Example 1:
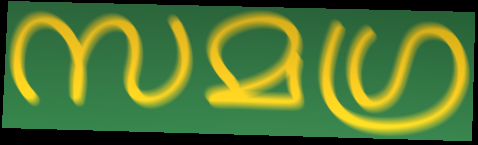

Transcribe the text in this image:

സമഗ്ര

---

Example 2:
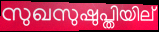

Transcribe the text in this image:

സുഖസുഷുപ്തിയില്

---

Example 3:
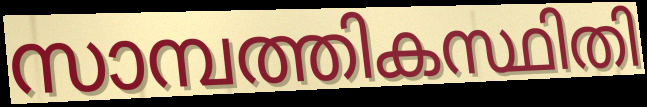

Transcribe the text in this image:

സാമ്പത്തികസ്ഥിതി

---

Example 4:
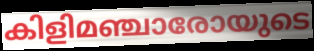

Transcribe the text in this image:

കിളിമഞ്ചാരോയുടെ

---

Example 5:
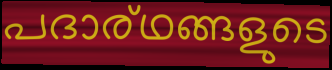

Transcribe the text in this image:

പദാര്ഥങ്ങളുടെ